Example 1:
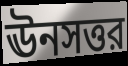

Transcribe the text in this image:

ঊনসত্তর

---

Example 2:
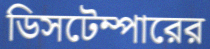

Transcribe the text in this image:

ডিসটেম্পারের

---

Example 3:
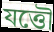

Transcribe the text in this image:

যত্তৌ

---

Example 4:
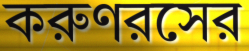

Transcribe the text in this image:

করুণরসের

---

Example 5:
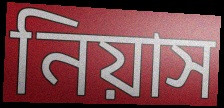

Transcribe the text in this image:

নিয়াস